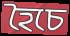
হৈচে